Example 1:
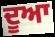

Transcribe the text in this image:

ਦੂਆ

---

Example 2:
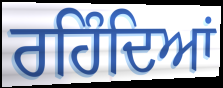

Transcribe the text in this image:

ਰਹਿੰਦਿਆਂ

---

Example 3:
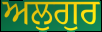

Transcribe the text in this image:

ਅਲੁਗੁਰ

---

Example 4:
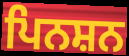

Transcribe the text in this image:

ਪਿਨਸ਼ਨ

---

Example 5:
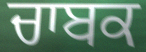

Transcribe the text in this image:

ਚਾਬਕ